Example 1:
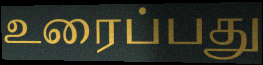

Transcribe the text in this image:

உரைப்பது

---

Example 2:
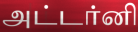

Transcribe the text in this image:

அட்டர்னி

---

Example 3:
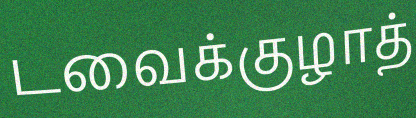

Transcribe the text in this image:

டவைக்குழாத்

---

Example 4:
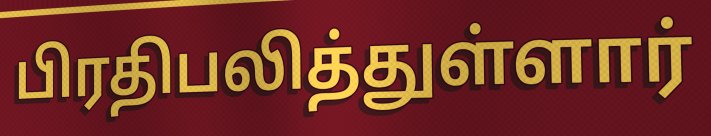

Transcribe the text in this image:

பிரதிபலித்துள்ளார்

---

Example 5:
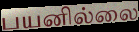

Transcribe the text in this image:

பயனில்லை